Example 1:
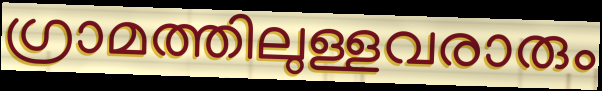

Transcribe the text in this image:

ഗ്രാമത്തിലുള്ളവരാരും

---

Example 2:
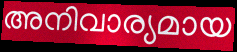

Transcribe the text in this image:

അനിവാര്യമായ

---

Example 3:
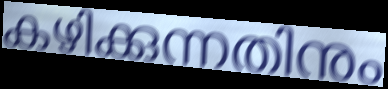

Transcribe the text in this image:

കഴിക്കുന്നതിനും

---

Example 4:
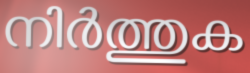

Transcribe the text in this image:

നിർത്തുക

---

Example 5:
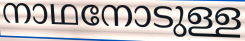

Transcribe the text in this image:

നാഥനോടുള്ള